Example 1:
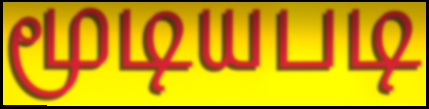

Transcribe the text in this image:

மூடியபடி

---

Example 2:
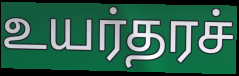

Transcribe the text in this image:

உயர்தரச்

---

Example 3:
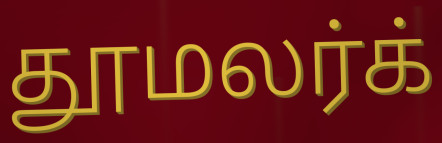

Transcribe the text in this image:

தூமலர்க்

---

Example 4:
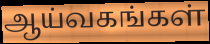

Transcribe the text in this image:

ஆய்வகங்கள்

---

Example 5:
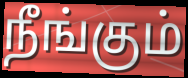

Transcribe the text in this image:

நீங்கும்